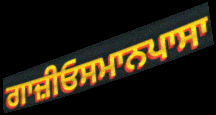
ਗਾਜ਼ੀਓਸਮਾਨਪਾਸਾ